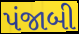
પંજાબી